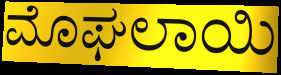
ಮೊಘಲಾಯಿ